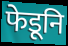
फेडूनि